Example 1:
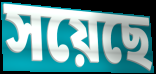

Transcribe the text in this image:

সয়েছে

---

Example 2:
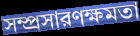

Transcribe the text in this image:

সম্প্রসারণক্ষমতা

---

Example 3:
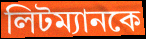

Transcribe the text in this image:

লিটম্যানকে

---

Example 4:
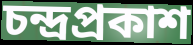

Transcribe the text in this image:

চন্দ্রপ্রকাশ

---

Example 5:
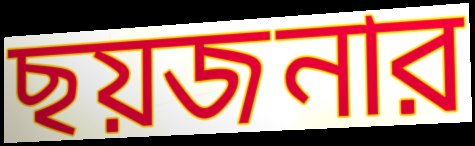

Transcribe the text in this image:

ছয়জনার